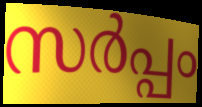
സർപ്പം